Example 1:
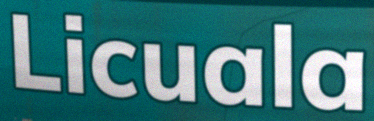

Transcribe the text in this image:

Licuala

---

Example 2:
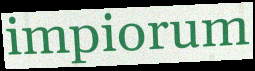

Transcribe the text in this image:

impiorum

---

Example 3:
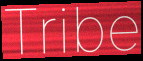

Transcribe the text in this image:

Tribe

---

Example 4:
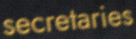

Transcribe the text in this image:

secretaries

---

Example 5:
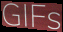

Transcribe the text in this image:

GIFs